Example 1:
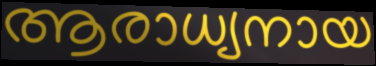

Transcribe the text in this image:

ആരാധ്യനായ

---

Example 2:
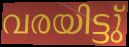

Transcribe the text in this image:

വരയിട്ടു്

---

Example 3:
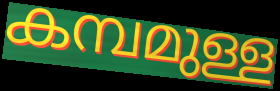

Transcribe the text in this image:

കമ്പമുള്ള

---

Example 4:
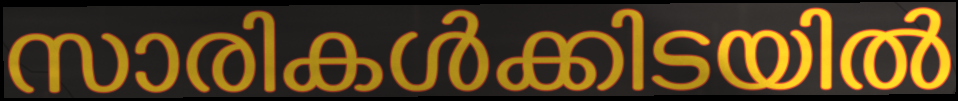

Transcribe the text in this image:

സാരികൾക്കിടയിൽ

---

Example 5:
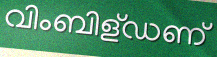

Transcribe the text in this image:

വിംബിള്ഡണ്